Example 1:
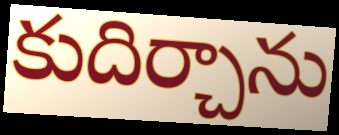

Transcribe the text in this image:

కుదిర్చాను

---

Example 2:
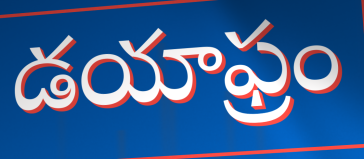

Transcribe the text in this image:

డయాఫ్రం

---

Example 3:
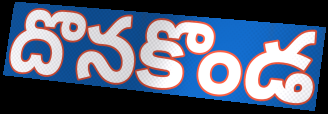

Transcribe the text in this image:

దొనకొండ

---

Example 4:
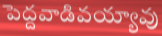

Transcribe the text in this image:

పెద్దవాడివయ్యావు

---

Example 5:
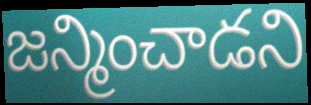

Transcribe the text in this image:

జన్మించాడని